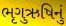
ભૃગુઋષિનું